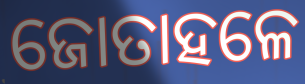
ଜୋତାହଳେ